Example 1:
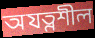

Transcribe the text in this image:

অযত্নশীল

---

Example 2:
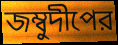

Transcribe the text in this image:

জম্বুদীপের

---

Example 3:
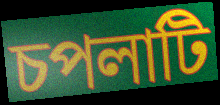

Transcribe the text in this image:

চপলাটি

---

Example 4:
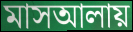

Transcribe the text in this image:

মাসআলায়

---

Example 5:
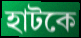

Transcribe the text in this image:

হাটকে